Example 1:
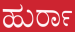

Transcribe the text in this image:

ಹುರ್ರಾ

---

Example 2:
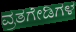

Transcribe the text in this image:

ವ್ರತಗೇಡಿಗಳ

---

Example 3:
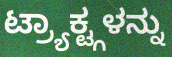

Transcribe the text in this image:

ಟ್ರ್ಯಾಕ್ಟ್ಗಳನ್ನು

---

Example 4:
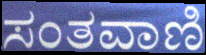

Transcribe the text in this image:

ಸಂತವಾಣಿ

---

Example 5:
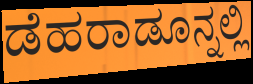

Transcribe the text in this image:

ಡೆಹರಾಡೂನ್ನಲ್ಲಿ